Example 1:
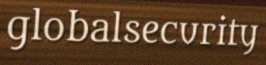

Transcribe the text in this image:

globalsecurity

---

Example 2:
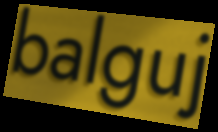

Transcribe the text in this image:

balguj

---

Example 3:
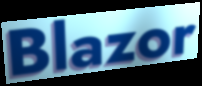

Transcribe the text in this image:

Blazor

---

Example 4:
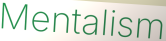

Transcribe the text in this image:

Mentalism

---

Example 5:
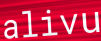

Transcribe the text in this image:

alivu